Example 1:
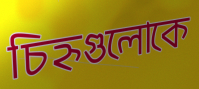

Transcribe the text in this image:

চিহ্নগুলোকে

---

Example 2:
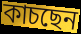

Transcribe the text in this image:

কাচছেন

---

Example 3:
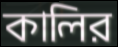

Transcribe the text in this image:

কালির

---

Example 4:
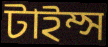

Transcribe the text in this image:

টাইম্স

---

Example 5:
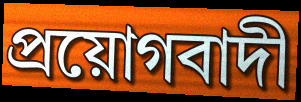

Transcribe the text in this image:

প্রয়োগবাদী